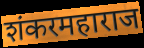
शंकरमहाराज